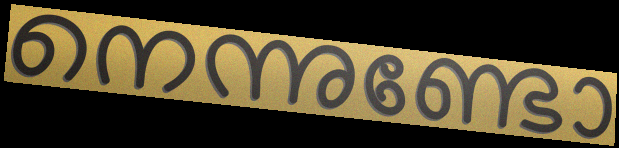
നെന്നുണ്ടോ